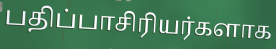
பதிப்பாசிரியர்களாக